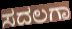
ಸದಲಗಾ